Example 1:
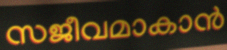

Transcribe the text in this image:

സജീവമാകാൻ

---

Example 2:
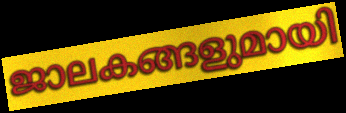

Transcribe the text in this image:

ജാലകങ്ങളുമായി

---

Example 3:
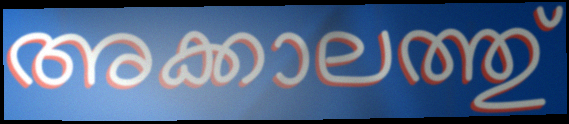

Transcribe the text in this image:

അക്കാലത്തു്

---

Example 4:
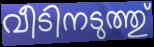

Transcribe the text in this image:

വീടിനടുത്തു്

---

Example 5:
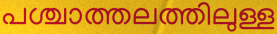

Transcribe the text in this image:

പശ്ചാത്തലത്തിലുള്ള